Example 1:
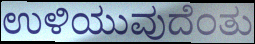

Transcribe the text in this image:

ಉಳಿಯುವುದೆಂತು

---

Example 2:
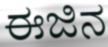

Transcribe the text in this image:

ಈಜಿನ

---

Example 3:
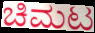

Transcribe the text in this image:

ಚಿಮಟ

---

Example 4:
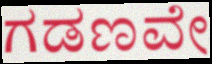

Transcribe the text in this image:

ಗಡಣವೇ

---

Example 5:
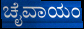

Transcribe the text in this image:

ಚೈವಾಯಂ